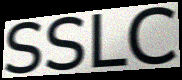
SSLC